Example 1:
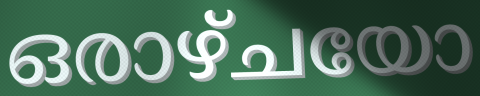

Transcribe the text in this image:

ഒരാഴ്ചയോ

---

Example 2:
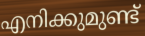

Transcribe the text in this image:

എനിക്കുമുണ്ട്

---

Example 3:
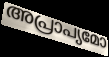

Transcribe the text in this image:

അപ്രാപ്യമോ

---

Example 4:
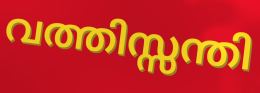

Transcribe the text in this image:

വത്തിസ്സന്തി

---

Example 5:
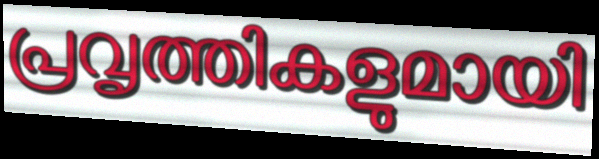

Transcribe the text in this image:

പ്രവൃത്തികളുമായി